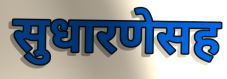
सुधारणेसह